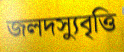
জলদস্যুবৃত্তি